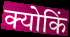
क्योकिं